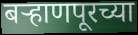
बऱ्हाणपूरच्या